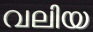
വലിയ